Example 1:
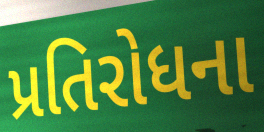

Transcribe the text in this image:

પ્રતિરોધના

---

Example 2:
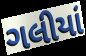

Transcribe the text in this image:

ગલીયાં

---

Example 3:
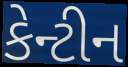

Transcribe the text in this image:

કેન્ટીન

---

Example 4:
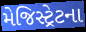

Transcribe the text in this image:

મેજિસ્ટ્રેટના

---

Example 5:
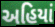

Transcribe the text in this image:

અહિયાં